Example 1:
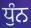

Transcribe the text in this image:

ਧੁੰਨ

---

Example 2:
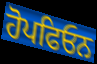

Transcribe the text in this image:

ਹੋਪਫਿਓਨ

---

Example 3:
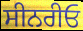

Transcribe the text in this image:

ਸੀਨਰੀਓ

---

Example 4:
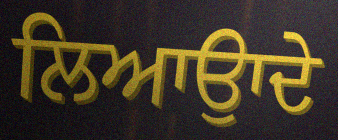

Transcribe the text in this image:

ਲਿਆਉਾਦੇ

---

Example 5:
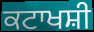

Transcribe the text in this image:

ਕਟਾਖਸ਼ੀ